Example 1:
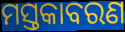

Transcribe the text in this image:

ମସ୍ତକାବରଣ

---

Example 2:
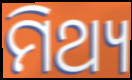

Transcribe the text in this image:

ମିଥ୍ୟ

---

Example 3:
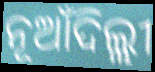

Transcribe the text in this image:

ନୂଆଁଦିଲ୍ଲୀ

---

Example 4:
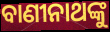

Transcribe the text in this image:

ବାଣୀନାଥଙ୍କୁ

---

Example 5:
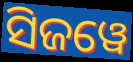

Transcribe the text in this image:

ସିଜୱେ